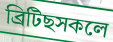
ব্ৰিটিছসকলে